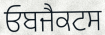
ਓਬਜੈਕਟਸ